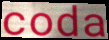
coda